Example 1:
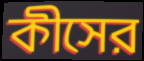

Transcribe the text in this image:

কীসের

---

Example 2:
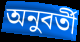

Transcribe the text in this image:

অনুবর্তী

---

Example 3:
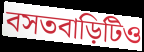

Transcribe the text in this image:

বসতবাড়িটিও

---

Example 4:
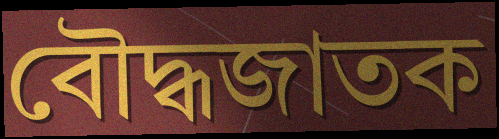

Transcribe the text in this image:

বৌদ্ধজাতক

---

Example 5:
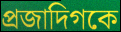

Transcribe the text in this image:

প্রজাদিগকে